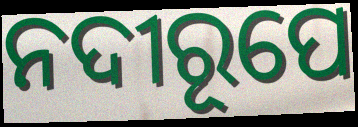
ନଦୀରୂପେ